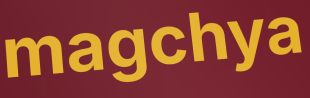
magchya